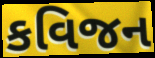
કવિજન